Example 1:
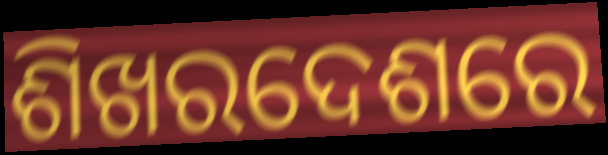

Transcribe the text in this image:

ଶିଖରଦେଶରେ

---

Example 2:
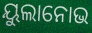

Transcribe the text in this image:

ୟୁଲାନୋଭ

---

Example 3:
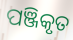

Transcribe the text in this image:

ପଞ୍ଜିକୃତ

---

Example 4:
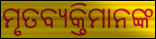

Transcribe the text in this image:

ମୃତବ୍ୟକ୍ତିମାନଙ୍କ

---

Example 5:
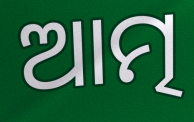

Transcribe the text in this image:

ଆତ୍ମ